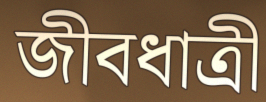
জীবধাত্রী